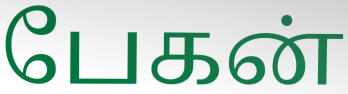
பேகன்